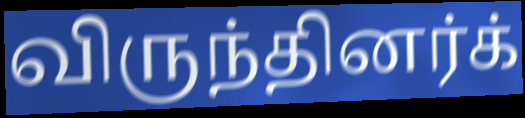
விருந்தினர்க்